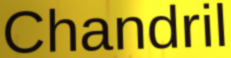
Chandril